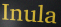
Inula